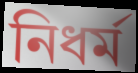
নিধর্ম